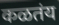
कळतंय